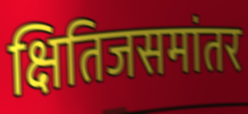
क्षितिजसमांतर